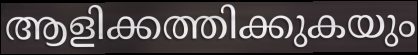
ആളിക്കത്തിക്കുകയും